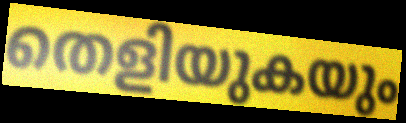
തെളിയുകയും